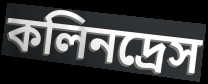
কলিনদ্রেস